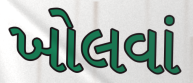
ખોલવાં